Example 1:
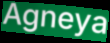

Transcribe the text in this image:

Agneya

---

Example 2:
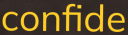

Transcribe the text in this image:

confide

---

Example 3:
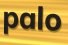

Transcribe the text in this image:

palo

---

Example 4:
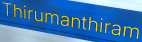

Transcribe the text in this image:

Thirumanthiram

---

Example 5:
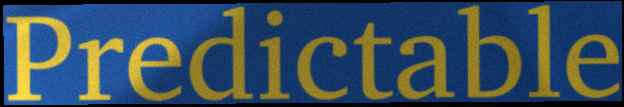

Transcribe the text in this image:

Predictable